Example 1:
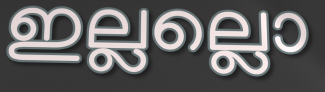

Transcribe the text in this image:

ഇല്ലല്ലൊ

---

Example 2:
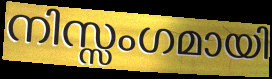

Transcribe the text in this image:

നിസ്സംഗമായി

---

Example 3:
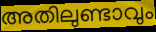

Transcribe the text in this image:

അതിലുണ്ടാവും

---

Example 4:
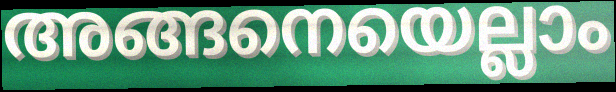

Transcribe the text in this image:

അങ്ങനെയെല്ലാം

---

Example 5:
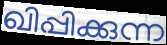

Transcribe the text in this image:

ഖിപ്പിക്കുന്ന